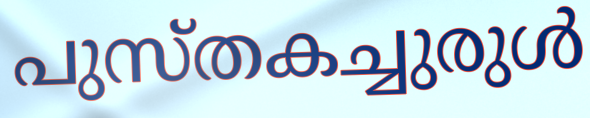
പുസ്തകച്ചുരുൾ